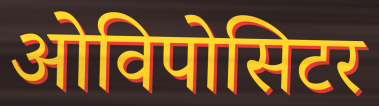
ओविपोसिटर